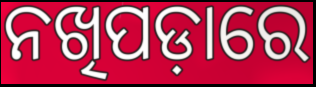
ନଖିପଡ଼ାରେ